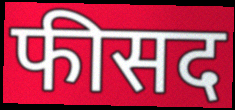
फीसद